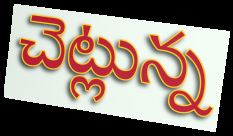
చెట్లున్న